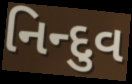
નિન્દુવ